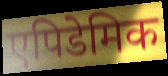
एपिडेमिक